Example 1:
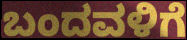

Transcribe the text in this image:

ಬಂದವಳಿಗೆ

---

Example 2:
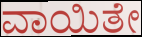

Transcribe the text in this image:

ವಾಯಿತೇ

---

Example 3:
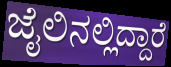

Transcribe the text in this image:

ಜೈಲಿನಲ್ಲಿದ್ದಾರೆ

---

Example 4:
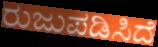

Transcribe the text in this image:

ರುಜುಪಡಿಸಿದೆ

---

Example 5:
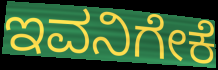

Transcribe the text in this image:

ಇವನಿಗೇಕೆ